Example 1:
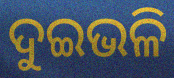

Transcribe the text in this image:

ଦୁଇଭଳି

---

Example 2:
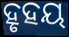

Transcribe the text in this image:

ହୃହୟ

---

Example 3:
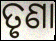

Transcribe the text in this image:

ତୃଣା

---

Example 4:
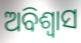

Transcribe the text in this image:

ଅବିଶ୍ବାସ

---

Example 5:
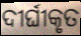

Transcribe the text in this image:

ଦୀର୍ଘୀକୃତ